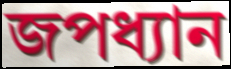
জপধ্যান